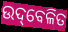
ଉଦ୍‌ବେଳିତ